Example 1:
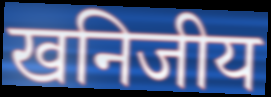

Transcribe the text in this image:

खनिजीय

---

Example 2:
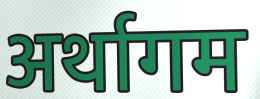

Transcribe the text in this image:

अर्थागम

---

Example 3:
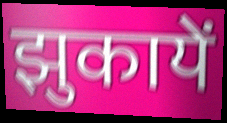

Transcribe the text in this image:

झुकायें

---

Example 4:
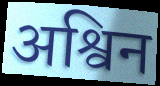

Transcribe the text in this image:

अश्विन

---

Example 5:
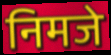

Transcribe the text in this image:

निमजे